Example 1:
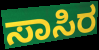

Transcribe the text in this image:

ಸಾಸಿರ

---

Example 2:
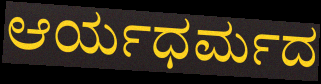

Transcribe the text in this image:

ಆರ್ಯಧರ್ಮದ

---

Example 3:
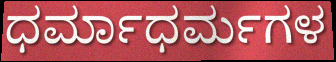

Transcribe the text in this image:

ಧರ್ಮಾಧರ್ಮಗಳ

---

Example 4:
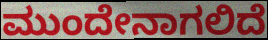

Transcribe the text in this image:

ಮುಂದೇನಾಗಲಿದೆ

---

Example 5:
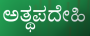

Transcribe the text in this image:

ಅತ್ಥಪದೇಹಿ